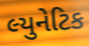
લ્યુનેટિક